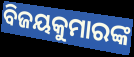
ବିଜୟକୁମାରଙ୍କ